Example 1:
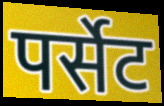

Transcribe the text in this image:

पर्सेट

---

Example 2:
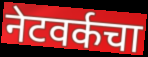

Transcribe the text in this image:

नेटवर्कचा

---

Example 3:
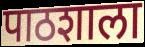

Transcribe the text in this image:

पाठशाला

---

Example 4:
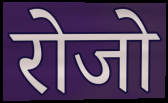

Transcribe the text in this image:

रोजो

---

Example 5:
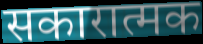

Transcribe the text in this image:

सकारात्मक